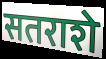
सतराशे